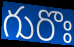
గురొః